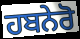
ਹਬਨੇਰੋ